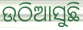
ଉଠିଆସୁଛି